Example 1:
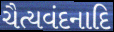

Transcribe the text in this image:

ચૈત્યવંદનાદિ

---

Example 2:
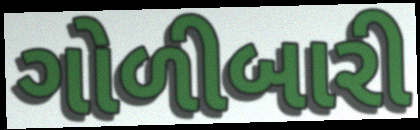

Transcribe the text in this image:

ગોળીબારી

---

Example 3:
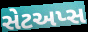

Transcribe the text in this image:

સેટઅપ્સ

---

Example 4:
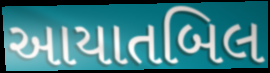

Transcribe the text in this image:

આયાતબિલ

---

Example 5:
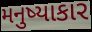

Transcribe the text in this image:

મનુષ્યાકાર